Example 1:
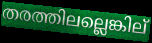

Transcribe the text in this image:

തരത്തിലല്ലെങ്കില്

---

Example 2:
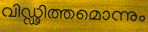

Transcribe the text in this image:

വിഡ്ഢിത്തമൊന്നും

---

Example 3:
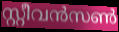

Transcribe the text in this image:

സ്റ്റീവൻസൺ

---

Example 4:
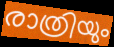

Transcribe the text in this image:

രാത്രിയും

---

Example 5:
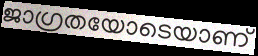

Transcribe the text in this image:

ജാഗ്രതയോടെയാണ്